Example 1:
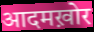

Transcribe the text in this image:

आदमख़ोर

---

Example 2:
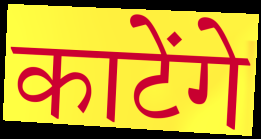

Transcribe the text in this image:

काटेंगे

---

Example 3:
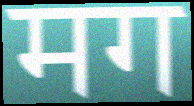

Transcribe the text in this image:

मग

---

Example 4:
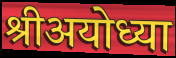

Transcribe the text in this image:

श्रीअयोध्या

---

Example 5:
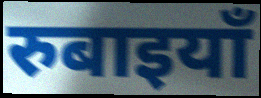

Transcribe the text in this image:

रुबाइयाँ